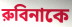
রুবিনাকে